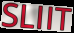
SLIIT